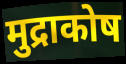
मुद्राकोष